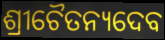
ଶ୍ରୀଚୈତନ୍ୟଦେବ